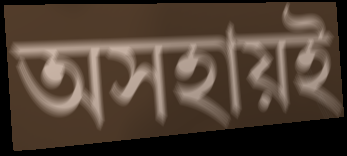
অসহায়ই